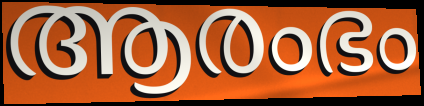
ആരംഭം